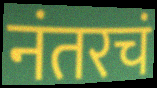
नंतरचं